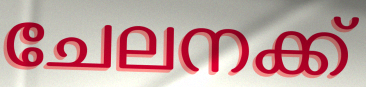
ചേലനക്ക്